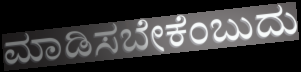
ಮಾಡಿಸಬೇಕೆಂಬುದು